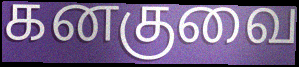
கனகுவை